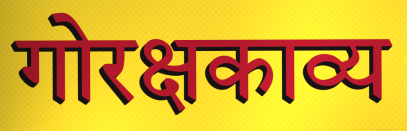
गोरक्षकाव्य